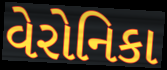
વેરોનિકા